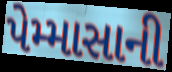
પેમ્માસાની